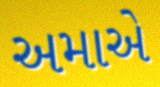
અમાએ